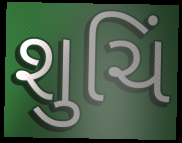
શુચિં